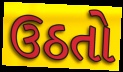
ઉઠતો